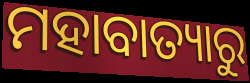
ମହାବାତ୍ୟାରୁ